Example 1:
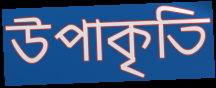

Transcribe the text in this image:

উপাকৃতি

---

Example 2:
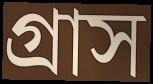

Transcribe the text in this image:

গ্ৰাস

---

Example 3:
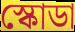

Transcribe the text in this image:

স্কোডা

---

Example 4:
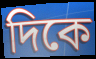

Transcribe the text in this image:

দিকে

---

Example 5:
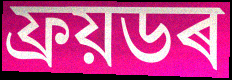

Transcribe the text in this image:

ফ্ৰয়ডৰ